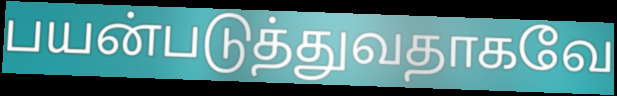
பயன்படுத்துவதாகவே